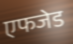
एफजेड